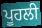
ਪੂਹਲੀ